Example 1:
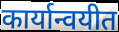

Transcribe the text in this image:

कार्यान्वयीत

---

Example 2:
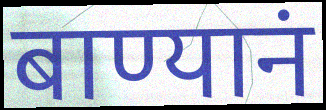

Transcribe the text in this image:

बाण्यानं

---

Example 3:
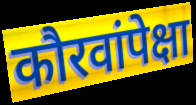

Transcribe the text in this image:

कौरवांपेक्षा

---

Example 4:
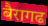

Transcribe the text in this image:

बैरागढ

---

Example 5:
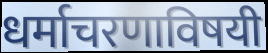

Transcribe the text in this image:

धर्माचरणाविषयी